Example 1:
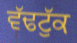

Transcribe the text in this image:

ਵੱਢਟੁੱਕ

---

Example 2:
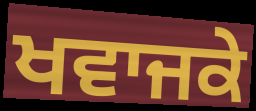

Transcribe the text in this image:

ਖਵਾਜਕੇ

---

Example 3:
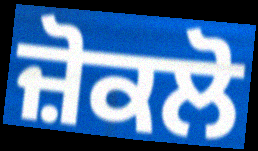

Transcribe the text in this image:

ਜ਼ੋਕਲੋ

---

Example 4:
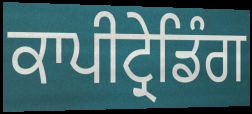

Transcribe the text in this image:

ਕਾਪੀਟ੍ਰੇਡਿੰਗ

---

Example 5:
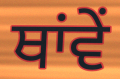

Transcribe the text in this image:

ਥਾਂਵੇਂ